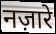
नज़ारे